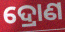
ଦ୍ରୋଣ